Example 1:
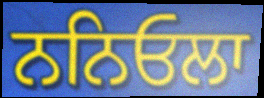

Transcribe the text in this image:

ਨਨਿਓਲਾ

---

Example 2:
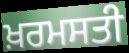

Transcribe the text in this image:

ਖ਼ਰਮਸਤੀ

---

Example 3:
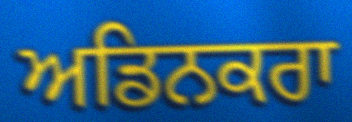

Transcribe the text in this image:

ਅਡਿਨਕਰਾ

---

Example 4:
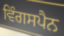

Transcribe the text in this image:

ਵਿੰਗਸਪੈਨ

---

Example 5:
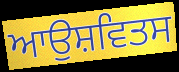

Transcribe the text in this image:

ਆਉਸ਼ਵਿਤਸ